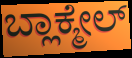
ಬ್ಲಾಕ್ಮೇಲ್